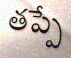
తప్పే